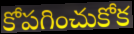
కోపగించుకోక